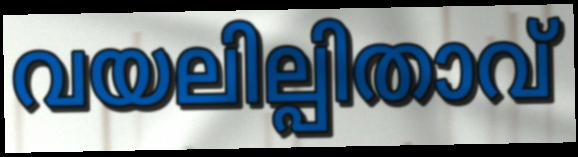
വയലില്പിതാവ്